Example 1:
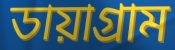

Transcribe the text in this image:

ডায়াগ্রাম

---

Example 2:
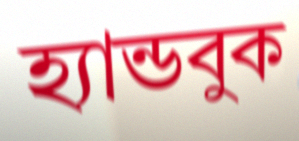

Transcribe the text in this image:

হ্যান্ডবুক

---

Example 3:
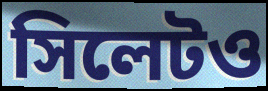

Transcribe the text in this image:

সিলেটও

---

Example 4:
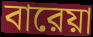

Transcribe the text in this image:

বারেয়া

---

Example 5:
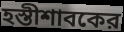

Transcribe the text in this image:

হস্তীশাবকের